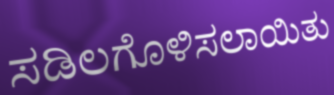
ಸಡಿಲಗೊಳಿಸಲಾಯಿತು